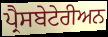
ਪ੍ਰੈਸਬੇਟੇਰੀਅਨ